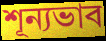
শূন্যভাব